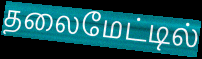
தலைமேட்டில்